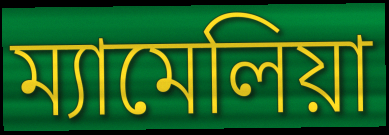
ম্যামেলিয়া